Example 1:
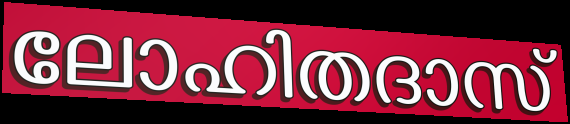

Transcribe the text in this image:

ലോഹിതദാസ്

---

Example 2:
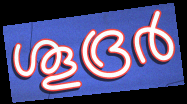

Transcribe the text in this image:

ശൂദ്രർ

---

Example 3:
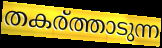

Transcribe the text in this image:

തകര്ത്താടുന്ന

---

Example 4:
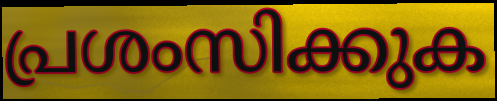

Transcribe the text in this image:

പ്രശംസിക്കുക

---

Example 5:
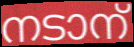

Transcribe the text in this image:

നടാന്